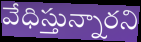
వేధిస్తున్నారని